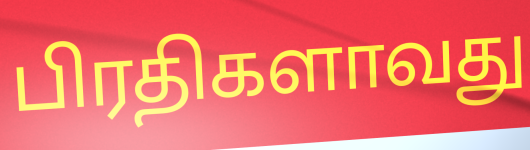
பிரதிகளாவது